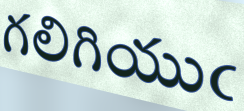
గలిగియుఁ